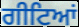
ਗੀਟਿਆਂ